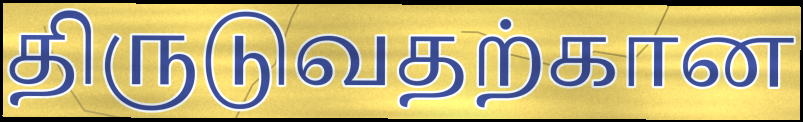
திருடுவதற்கான